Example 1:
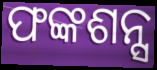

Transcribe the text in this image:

ଫଙ୍କଶନ୍ସ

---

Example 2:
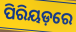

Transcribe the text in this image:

ପିରିୟଡ଼ରେ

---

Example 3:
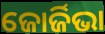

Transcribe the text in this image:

ଜୋର୍ଜିଭା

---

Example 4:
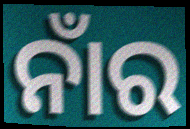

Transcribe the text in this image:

ନାଁର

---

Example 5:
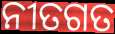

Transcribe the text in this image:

ନୀତଗତ